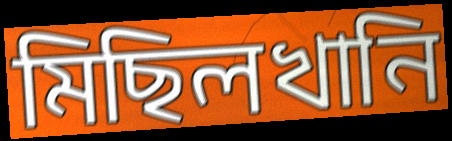
মিছিলখানি